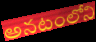
అనటంలోని